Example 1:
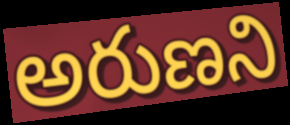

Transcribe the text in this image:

అరుణని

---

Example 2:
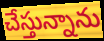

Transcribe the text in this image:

చేస్తున్నాను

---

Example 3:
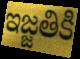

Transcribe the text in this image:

ఇజ్జతికి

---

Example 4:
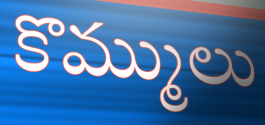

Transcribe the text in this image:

కొమ్ములు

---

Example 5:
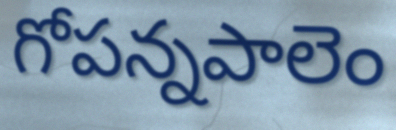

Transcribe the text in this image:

గోపన్నపాలెం